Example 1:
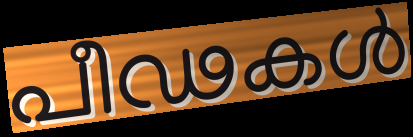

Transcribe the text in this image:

പീഢകൾ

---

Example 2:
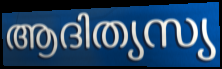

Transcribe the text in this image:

ആദിത്യസ്യ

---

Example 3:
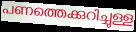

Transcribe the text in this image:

പണത്തെക്കുറിച്ചുള്ള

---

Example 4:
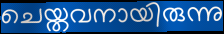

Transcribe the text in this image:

ചെയ്തവനായിരുന്നു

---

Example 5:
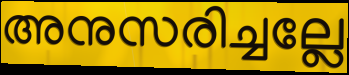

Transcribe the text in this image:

അനുസരിച്ചല്ലേ